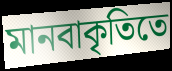
মানবাকৃতিতে